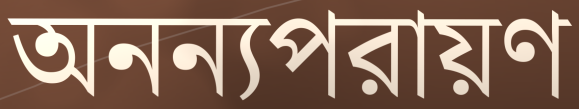
অনন্যপরায়ণ